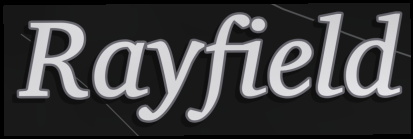
Rayfield